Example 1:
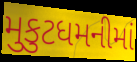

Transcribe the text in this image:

મુકુટધમનીમાં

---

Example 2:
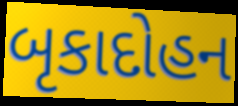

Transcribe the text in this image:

બૃકાદોહન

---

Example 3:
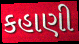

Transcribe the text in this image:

કહાણી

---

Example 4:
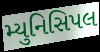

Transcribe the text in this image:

મ્યુનિસિપલ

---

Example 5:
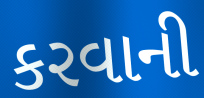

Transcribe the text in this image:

કરવાની